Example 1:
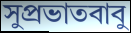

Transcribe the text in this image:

সুপ্রভাতবাবু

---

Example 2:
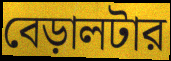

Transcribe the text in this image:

বেড়ালটার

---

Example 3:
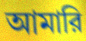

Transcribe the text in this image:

আমারি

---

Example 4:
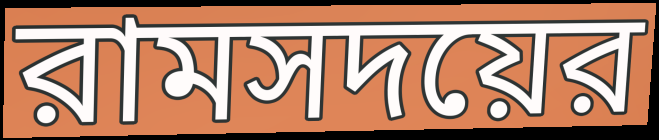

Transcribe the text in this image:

রামসদয়ের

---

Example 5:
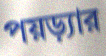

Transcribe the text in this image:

পয়ড়্যার